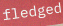
fledged